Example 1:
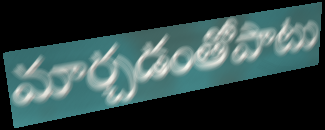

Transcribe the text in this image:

మార్చడంతోపాటు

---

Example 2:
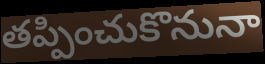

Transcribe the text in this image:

తప్పించుకొనునా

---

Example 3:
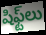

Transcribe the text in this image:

షిఫ్ట్‌లు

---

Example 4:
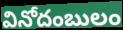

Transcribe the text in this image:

వినోదంబులం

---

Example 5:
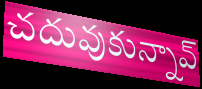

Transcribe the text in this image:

చదువుకున్నావ్